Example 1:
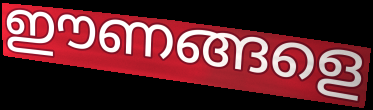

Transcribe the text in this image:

ഈണങ്ങളെ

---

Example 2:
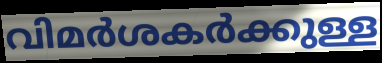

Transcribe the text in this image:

വിമർശകർക്കുള്ള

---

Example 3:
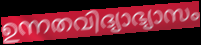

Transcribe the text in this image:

ഉന്നതവിദ്യാഭ്യാസം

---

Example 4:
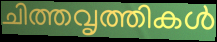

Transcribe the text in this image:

ചിത്തവൃത്തികൾ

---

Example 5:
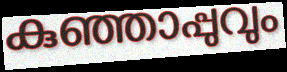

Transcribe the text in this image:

കുഞ്ഞാപ്പുവും